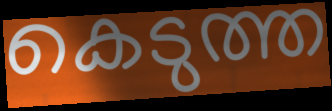
കെടുത്ത